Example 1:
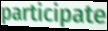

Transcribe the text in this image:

participate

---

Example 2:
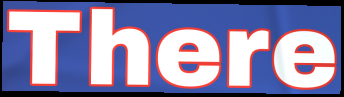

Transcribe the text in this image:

There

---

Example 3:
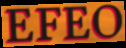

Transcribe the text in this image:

EFEO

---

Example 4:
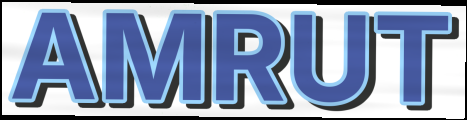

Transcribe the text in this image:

AMRUT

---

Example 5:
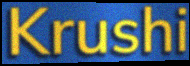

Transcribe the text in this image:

Krushi